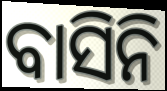
ବାସିନି